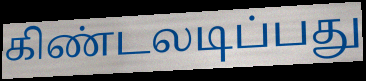
கிண்டலடிப்பது